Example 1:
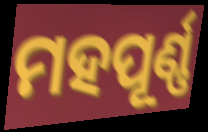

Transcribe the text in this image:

ମହପୂର୍ଣ୍ଣ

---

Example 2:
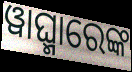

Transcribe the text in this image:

ୱାଘ୍ମାରେଙ୍କ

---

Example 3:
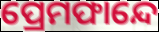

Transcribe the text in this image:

ପ୍ରେମଫାନ୍ଦେ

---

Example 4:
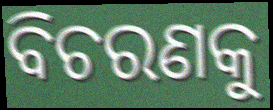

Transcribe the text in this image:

ବିଚରଣକୁ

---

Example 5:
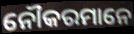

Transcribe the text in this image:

ନୌକରମାନେ